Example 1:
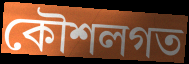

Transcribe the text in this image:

কৌশলগত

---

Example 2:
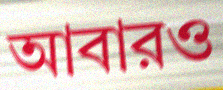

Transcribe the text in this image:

আবারও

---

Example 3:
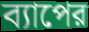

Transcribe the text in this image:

ব্যাপের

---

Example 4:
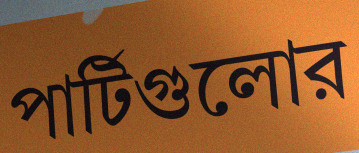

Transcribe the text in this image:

পার্টিগুলোর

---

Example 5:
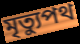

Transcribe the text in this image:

মৃত্যুপথ